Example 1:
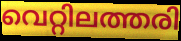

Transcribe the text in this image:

വെറ്റിലത്തരി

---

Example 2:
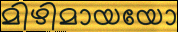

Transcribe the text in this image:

മിഴിമായയോ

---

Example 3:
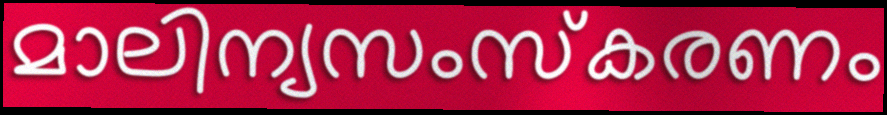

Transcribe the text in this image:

മാലിന്യസംസ്കരണം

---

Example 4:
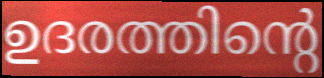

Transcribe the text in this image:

ഉദരത്തിന്റെ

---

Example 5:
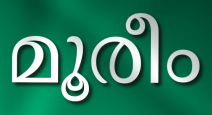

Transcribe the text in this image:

മൂരീം